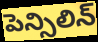
పెన్సిలిన్